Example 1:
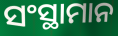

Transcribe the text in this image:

ସଂସ୍ଥାମାନ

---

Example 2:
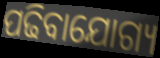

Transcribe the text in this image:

ପଢିବାଯୋଗ୍ୟ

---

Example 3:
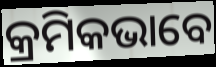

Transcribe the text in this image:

କ୍ରମିକଭାବେ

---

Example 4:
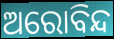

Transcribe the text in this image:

ଅରୋବିନ୍ଦ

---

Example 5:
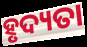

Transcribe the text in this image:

ହୃଦ୍ୟତା